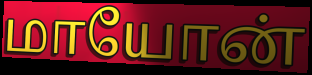
மாயோன்